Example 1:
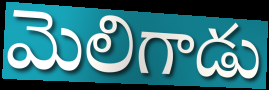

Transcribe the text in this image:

మెలిగాడు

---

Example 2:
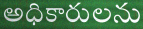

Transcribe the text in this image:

అధికారులను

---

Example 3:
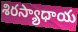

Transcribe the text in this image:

శిరస్యాధాయ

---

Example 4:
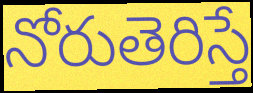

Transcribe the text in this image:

నోరుతెరిస్తే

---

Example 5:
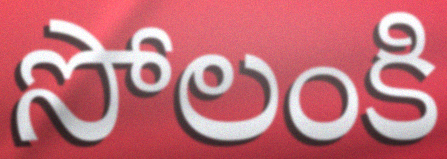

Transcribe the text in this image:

సోలంకి